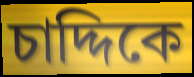
চাদ্দিকে